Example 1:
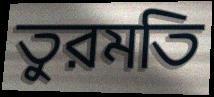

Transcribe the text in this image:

তুরমতি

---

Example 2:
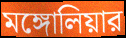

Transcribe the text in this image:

মঙ্গোলিয়ার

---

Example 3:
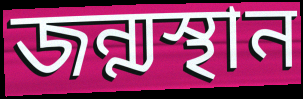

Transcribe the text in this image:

জন্মস্থান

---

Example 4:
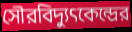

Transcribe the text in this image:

সৌরবিদ্যুৎকেন্দ্রের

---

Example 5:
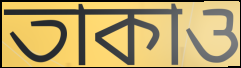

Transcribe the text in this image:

তাকাও